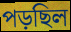
পড়ছিল